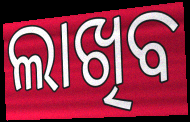
ଲାଖିବ